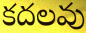
కదలవు